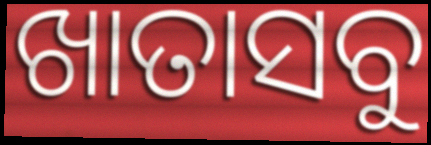
ଖାତାସବୁ